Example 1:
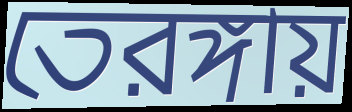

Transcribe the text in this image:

তেরঙ্গায়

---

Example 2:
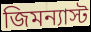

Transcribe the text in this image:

জিমন্যাস্ট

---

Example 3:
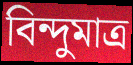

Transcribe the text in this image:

বিন্দুমাত্র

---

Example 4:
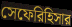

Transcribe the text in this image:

সেফেরিহিসার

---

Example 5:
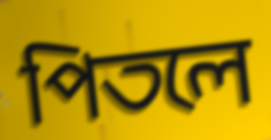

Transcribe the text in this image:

পিতলে